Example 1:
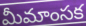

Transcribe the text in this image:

మీమాంసక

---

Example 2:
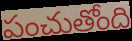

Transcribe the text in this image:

పంచుతోంది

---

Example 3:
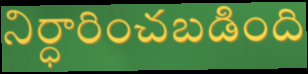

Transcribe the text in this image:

నిర్ధారించబడింది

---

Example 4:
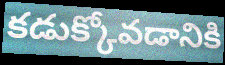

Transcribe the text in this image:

కడుక్కోవడానికి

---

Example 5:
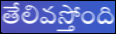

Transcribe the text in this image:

తేలివస్తోంది